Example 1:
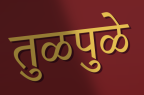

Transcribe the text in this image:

तुळपुळे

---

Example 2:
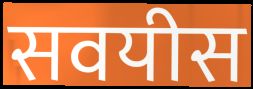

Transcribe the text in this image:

सवयीस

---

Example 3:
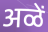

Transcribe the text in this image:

अळें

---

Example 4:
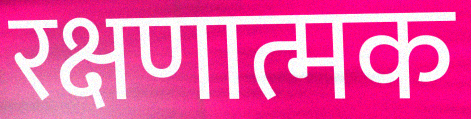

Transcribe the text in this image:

रक्षणात्मक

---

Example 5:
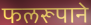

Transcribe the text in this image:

फलरूपाने